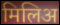
मिलिअ